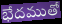
భేదముతో